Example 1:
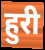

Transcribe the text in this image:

हुरी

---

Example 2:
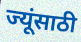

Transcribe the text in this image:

ज्यूंसाठी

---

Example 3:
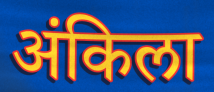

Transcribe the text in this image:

अंकिला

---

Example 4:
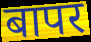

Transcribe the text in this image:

बापर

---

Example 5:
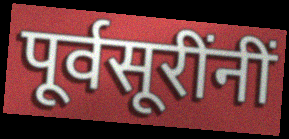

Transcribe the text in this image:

पूर्वसूरींनीं